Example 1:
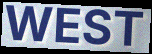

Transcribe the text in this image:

WEST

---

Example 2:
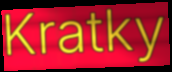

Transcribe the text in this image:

Kratky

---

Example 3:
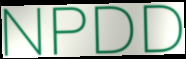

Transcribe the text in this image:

NPDD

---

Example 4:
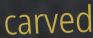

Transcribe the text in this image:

carved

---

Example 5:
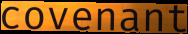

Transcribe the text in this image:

covenant